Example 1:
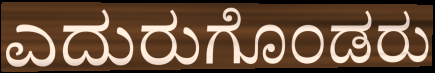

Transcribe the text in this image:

ಎದುರುಗೊಂಡರು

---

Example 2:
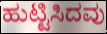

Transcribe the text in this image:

ಹುಟ್ಟಿಸಿದವು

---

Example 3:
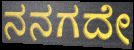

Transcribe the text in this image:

ನನಗದೇ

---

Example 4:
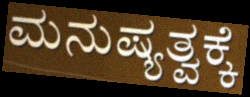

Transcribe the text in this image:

ಮನುಷ್ಯತ್ವಕ್ಕೆ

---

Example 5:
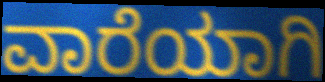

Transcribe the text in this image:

ವಾರೆಯಾಗಿ